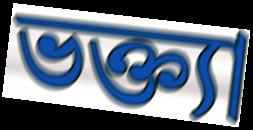
ভক্ত্যা